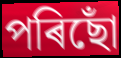
পৰিছোঁ